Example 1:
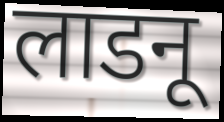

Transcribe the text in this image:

लाडनू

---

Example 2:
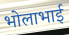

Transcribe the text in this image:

भोलाभाई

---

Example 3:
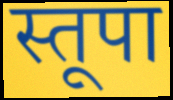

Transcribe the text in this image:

स्तूपा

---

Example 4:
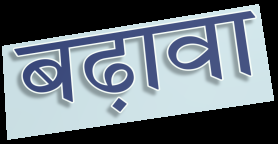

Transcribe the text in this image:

बढ़ावा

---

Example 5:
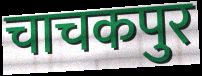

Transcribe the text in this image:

चाचकपुर